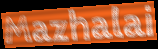
Mazhalai